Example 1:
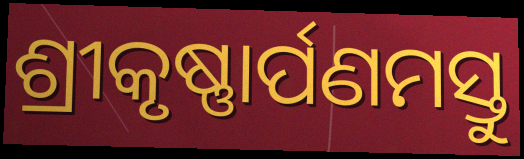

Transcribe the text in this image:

ଶ୍ରୀକୃଷ୍ଣାର୍ପଣମସ୍ତୁ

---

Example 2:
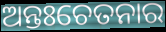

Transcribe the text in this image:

ଅନ୍ତଃଚେତନାର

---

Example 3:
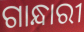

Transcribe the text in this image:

ଗାନ୍ଧାରୀ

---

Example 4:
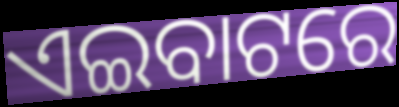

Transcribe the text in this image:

ଏଇବାଟରେ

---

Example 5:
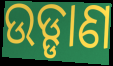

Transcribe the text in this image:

ଉଡ୍ଡାଣ